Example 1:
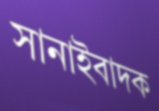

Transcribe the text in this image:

সানাইবাদক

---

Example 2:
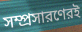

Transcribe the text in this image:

সম্প্রসারণেরই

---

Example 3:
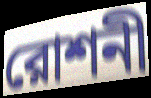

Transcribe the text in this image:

রোশনী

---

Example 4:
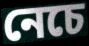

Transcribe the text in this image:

নেচে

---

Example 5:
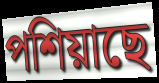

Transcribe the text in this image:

পশিয়াছে